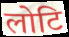
लोटि